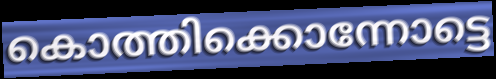
കൊത്തിക്കൊന്നോട്ടെ